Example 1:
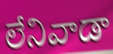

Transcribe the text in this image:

లేనివాడా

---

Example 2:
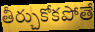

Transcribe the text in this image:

తీర్చుకోకపోతే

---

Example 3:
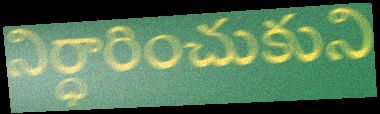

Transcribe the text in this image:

నిర్ధారించుకుని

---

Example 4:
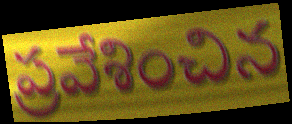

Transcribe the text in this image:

ప్రవేశించిన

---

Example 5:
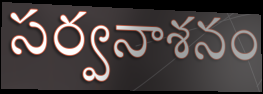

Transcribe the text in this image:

సర్వనాశనం